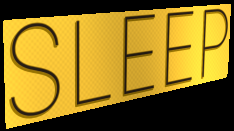
SLEEP